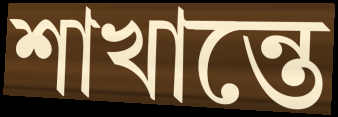
শাখান্তে